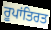
ਰੂਪਾਂਤਿਰਤ